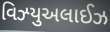
વિઝ્યુઅલાઈઝ